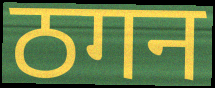
ठगन